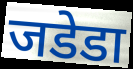
जडेडा